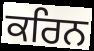
ਕਰਿਨ